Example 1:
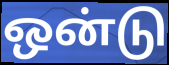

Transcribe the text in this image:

ஒன்டு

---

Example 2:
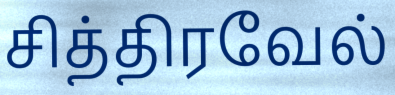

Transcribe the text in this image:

சித்திரவேல்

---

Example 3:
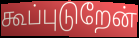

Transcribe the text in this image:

கூப்புடுறேன்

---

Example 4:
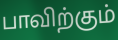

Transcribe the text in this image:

பாவிற்கும்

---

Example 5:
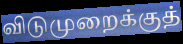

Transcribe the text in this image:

விடுமுறைக்குத்